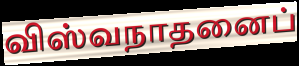
விஸ்வநாதனைப்